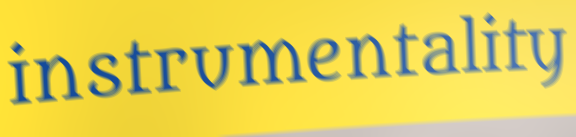
instrumentality